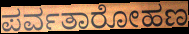
ಪರ್ವತಾರೋಹಣ